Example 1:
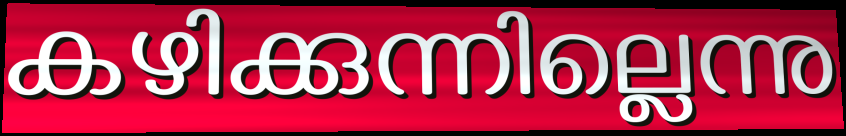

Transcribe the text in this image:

കഴിക്കുന്നില്ലെന്നു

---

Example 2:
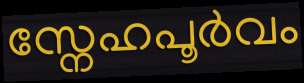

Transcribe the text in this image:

സ്നേഹപൂർവം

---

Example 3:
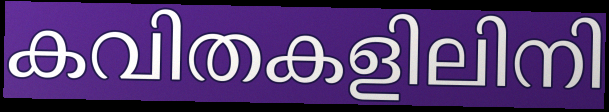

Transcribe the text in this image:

കവിതകളിലിനി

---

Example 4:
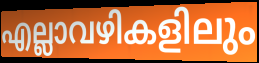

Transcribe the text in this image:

എല്ലാവഴികളിലും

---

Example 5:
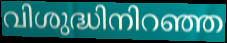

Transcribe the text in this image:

വിശുദ്ധിനിറഞ്ഞ